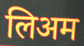
लिअम